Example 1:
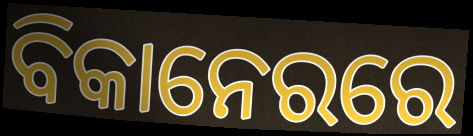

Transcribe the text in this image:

ବିକାନେରରେ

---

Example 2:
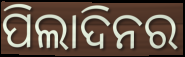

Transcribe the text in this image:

ପିଲାଦିନର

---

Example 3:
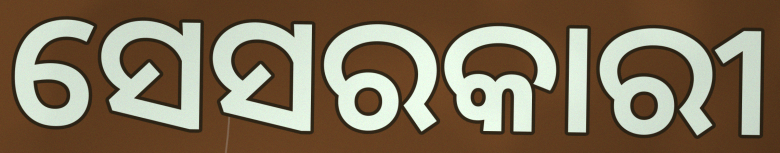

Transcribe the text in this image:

ସେସରକାରୀ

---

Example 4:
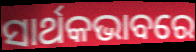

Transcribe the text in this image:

ସାର୍ଥକଭାବରେ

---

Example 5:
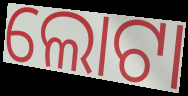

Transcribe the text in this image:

ଲୋଟା